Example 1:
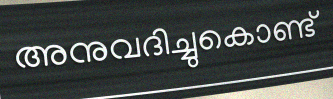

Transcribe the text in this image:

അനുവദിച്ചുകൊണ്ട്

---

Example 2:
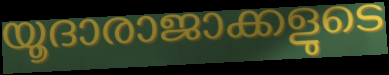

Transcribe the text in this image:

യൂദാരാജാക്കളുടെ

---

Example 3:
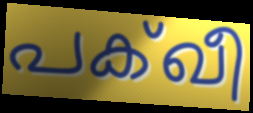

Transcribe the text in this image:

പക്ഖീ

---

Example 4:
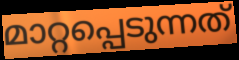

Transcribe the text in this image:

മാറ്റപ്പെടുന്നത്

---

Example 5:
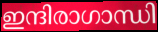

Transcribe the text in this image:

ഇന്ദിരാഗാന്ധി